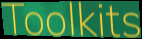
Toolkits